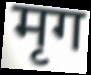
मृग